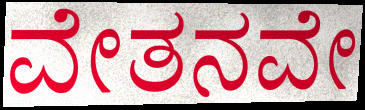
ವೇತನವೇ